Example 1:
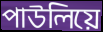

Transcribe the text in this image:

পাউলিয়ে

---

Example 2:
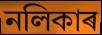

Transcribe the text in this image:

নলিকাৰ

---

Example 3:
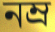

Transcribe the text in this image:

নম্ৰ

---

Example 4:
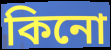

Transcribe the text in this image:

কিনো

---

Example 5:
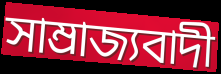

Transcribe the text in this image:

সাম্ৰাজ্যবাদী